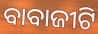
ବାବାଜୀଟି